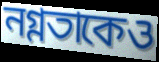
নগ্নতাকেও